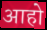
आहो